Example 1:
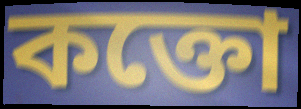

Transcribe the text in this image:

কক্তো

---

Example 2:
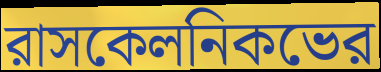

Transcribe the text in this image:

রাসকেলনিকভের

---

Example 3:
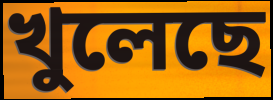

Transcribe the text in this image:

খুলেছে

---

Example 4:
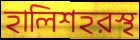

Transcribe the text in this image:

হালিশহরস্থ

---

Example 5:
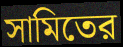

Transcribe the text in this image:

সামিতের